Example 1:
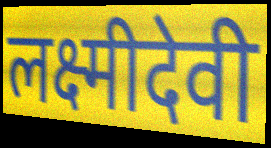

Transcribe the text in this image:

लक्ष्मीदेवी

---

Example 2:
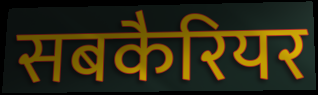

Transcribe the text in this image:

सबकैरियर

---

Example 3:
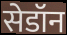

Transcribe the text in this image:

सेडॉन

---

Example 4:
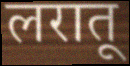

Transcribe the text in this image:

लरातू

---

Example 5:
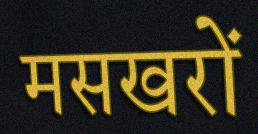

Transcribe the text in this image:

मसखरों